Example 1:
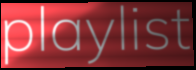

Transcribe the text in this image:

playlist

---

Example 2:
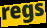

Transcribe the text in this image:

regs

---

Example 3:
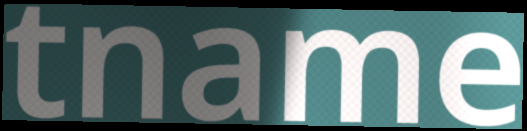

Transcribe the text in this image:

tname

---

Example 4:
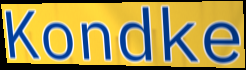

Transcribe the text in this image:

Kondke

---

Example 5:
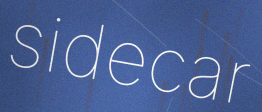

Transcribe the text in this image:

sidecar